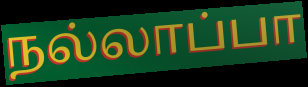
நல்லாப்பா